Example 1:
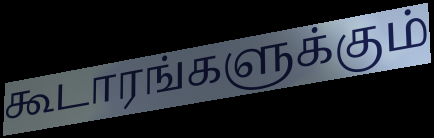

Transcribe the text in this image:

கூடாரங்களுக்கும்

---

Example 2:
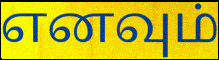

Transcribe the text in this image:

எனவும்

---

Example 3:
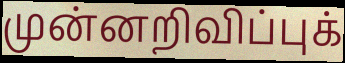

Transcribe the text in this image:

முன்னறிவிப்புக்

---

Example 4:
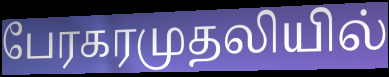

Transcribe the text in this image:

பேரகரமுதலியில்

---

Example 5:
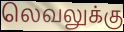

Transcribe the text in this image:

லெவலுக்கு